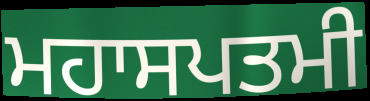
ਮਹਾਸਪਤਮੀ